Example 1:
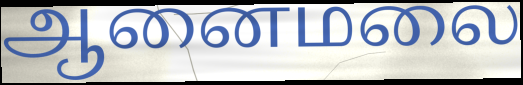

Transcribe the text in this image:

ஆனைமலை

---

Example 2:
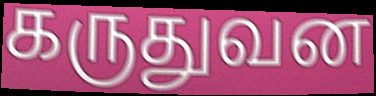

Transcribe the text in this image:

கருதுவன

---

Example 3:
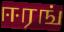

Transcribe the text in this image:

ஈரங்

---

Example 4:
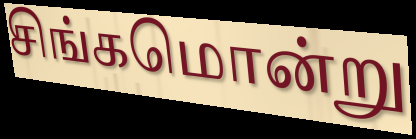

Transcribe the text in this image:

சிங்கமொன்று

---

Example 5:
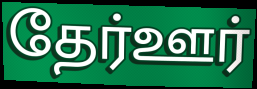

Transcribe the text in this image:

தேர்ஊர்